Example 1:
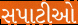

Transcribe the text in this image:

સપાટીઓ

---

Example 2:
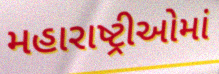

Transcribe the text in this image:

મહારાષ્ટ્રીઓમાં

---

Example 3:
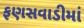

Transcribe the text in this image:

ફણસવાડીમાં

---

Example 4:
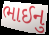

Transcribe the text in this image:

ભાઈનુ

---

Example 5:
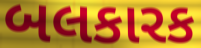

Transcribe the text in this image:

બલકારક